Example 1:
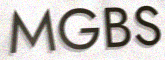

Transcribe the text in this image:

MGBS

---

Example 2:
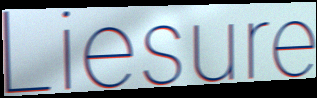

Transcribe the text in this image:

Liesure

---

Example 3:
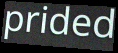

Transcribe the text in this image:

prided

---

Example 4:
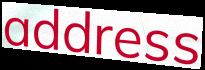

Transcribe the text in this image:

address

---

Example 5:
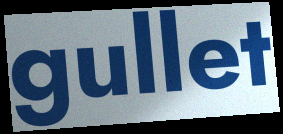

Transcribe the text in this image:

gullet